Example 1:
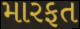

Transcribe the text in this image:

મારફત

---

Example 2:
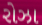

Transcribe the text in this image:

રોઝા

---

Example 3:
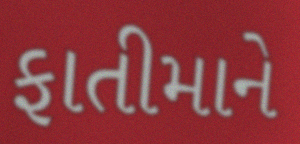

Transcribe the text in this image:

ફાતીમાને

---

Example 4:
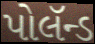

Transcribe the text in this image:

પોલૅન્ડ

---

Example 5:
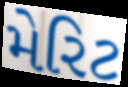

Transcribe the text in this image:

મેરિટ